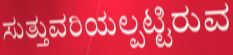
ಸುತ್ತುವರಿಯಲ್ಪಟ್ಟಿರುವ